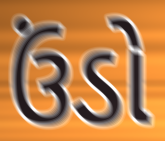
ઉંડો